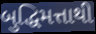
બુદ્ધિમત્તાથી